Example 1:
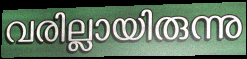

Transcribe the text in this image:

വരില്ലായിരുന്നു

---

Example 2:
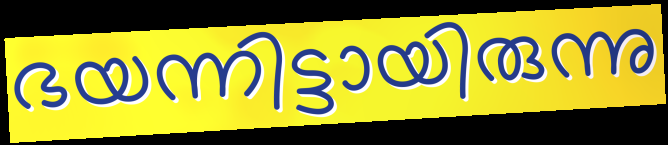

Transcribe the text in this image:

ഭയന്നിട്ടായിരുന്നു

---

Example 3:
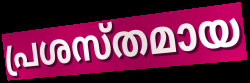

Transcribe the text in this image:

പ്രശസ്തമായ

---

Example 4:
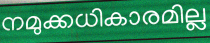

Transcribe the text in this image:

നമുക്കധികാരമില്ല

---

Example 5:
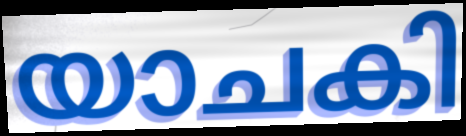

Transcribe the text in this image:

യാചകി